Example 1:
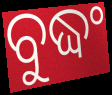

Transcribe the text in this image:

ବୁଦ୍ଧଂ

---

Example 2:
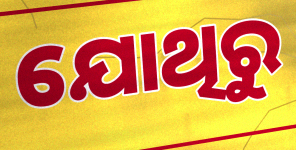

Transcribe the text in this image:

ଯୋଥିରୁ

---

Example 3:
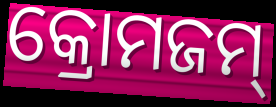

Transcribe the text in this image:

କ୍ରୋମଜମ୍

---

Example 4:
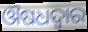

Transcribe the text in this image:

ଔଷଧଦ୍ୱାର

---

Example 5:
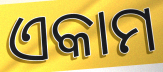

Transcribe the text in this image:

ଏକାମ